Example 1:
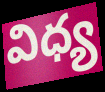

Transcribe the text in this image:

విధ్య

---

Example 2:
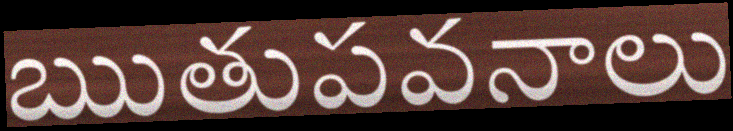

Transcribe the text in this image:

ఋతుపవనాలు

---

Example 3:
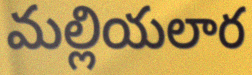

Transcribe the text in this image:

మల్లియలార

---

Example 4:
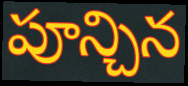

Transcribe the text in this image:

పూన్చిన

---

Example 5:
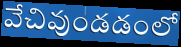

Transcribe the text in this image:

వేచివుండడంలో